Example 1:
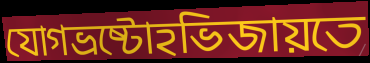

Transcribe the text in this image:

যোগভ্রষ্টোহভিজায়তে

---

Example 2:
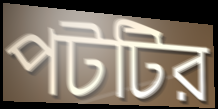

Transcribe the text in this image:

পটটির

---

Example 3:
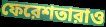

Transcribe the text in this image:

ফেরেশতারাও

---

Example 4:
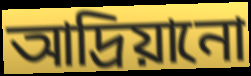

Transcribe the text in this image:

আদ্রিয়ানো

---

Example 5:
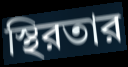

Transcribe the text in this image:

স্থিরতার